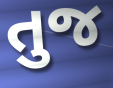
તુજ